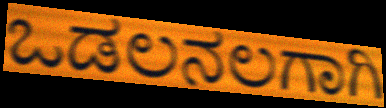
ಒಡಲನಲಗಾಗಿ